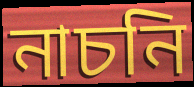
নাচনি